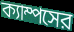
ক্যাম্পসের